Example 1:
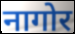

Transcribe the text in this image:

नागोर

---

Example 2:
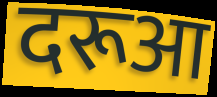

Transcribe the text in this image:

दरूआ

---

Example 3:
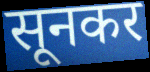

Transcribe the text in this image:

सूनकर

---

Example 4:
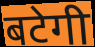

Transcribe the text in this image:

बटेगी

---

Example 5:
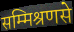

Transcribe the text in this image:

सम्मिश्रणसे